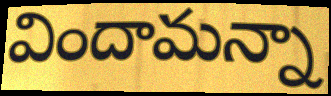
విందామన్నా